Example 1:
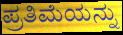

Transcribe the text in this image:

ಪ್ರತಿಮೆಯನ್ನು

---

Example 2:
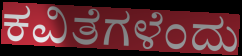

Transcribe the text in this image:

ಕವಿತೆಗಳೆಂದು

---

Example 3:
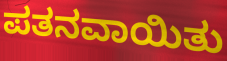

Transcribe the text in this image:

ಪತನವಾಯಿತು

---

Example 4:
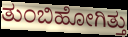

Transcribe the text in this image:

ತುಂಬಿಹೋಗಿತ್ತು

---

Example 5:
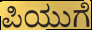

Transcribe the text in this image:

ಪಿಯುಗೆ